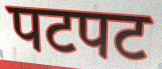
पटपट